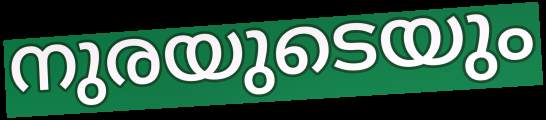
നുരയുടെയും